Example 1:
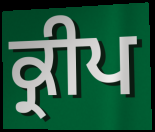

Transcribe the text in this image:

ਕ੍ਰੀਪ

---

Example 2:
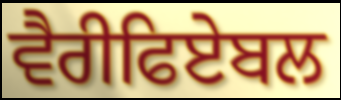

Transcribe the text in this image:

ਵੈਰੀਫਿਏਬਲ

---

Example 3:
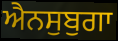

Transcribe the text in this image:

ਐਨਸੁਬੁਗਾ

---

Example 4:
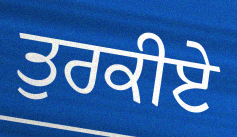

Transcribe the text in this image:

ਤੁਰਕੀਏ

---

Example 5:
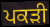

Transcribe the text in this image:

ਪਕੜੀ